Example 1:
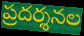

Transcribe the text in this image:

ప్రదర్శనల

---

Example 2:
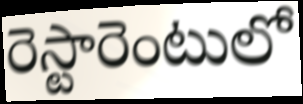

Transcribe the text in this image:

రెస్టారెంటులో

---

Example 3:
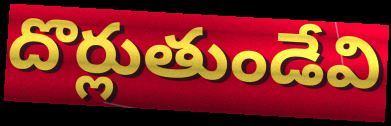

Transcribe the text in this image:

దొర్లుతుండేవి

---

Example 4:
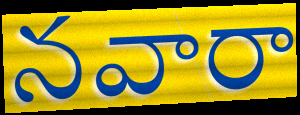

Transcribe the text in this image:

నవారా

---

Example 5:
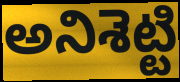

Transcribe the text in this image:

అనిశెట్టి